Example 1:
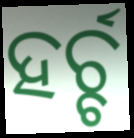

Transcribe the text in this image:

ହର୍ଚ୍ଚ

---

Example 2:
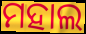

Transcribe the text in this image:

ମହାଲ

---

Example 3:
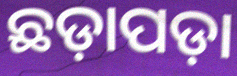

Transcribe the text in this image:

ଛଡ଼ାପଡ଼ା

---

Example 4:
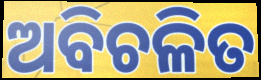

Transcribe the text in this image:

ଅବିଚଳିତ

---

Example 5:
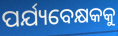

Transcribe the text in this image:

ପର୍ଯ୍ୟବେକ୍ଷକକୁ